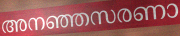
അനഞ്ഞസരണാ